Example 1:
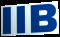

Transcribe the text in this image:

IIB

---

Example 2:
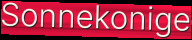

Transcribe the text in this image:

Sonnekonige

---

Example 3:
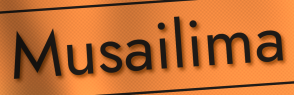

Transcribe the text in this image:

Musailima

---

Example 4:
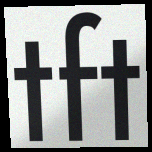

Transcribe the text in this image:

tft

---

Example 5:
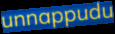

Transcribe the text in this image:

unnappudu